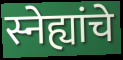
स्नेह्यांचे